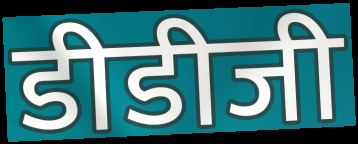
डीडीजी